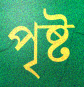
পৃষ্ট